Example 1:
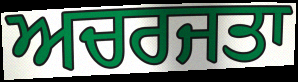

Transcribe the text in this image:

ਅਚਰਜਤਾ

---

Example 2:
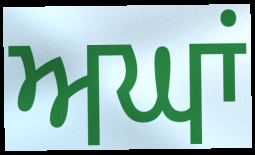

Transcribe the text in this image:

ਅਘਾਂ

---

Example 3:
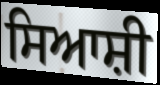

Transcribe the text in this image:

ਸਿਆਸ਼ੀ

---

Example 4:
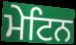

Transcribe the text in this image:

ਮੇਟਿਨ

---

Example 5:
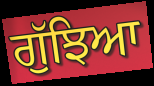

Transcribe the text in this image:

ਗੁੱਝਿਆ